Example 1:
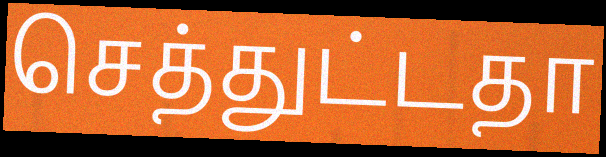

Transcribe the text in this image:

செத்துட்டதா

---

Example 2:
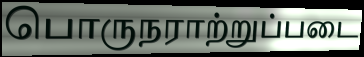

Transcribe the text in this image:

பொருநராற்றுப்படை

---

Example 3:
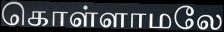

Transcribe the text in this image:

கொள்ளாமலே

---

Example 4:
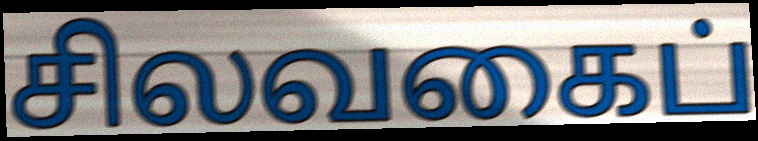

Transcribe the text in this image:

சிலவகைப்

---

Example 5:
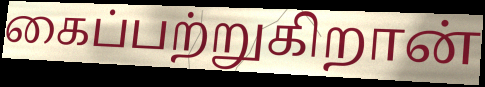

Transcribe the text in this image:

கைப்பற்றுகிறான்